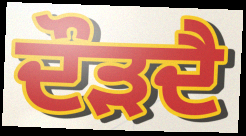
ਦੌੜਦੈ